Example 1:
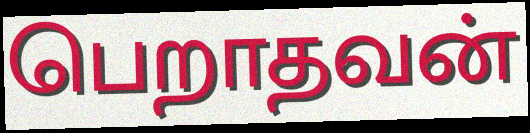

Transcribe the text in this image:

பெறாதவன்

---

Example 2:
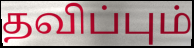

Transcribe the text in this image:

தவிப்பும்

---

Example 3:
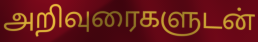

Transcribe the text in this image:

அறிவுரைகளுடன்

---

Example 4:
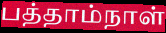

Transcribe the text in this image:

பத்தாம்நாள்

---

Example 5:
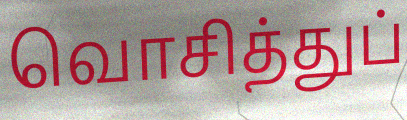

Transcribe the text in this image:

வொசித்துப்